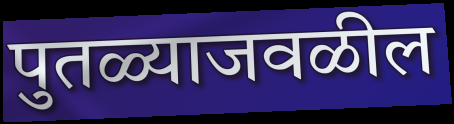
पुतळ्याजवळील